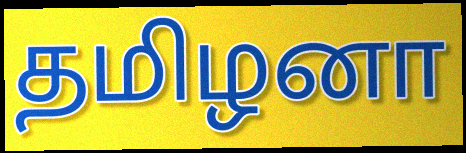
தமிழனா